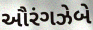
ઔરંગઝેબે